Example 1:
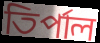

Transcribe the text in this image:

তিৰ্পাল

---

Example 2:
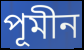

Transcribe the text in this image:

পূমীন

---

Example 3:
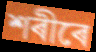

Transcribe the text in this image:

শৰীৰে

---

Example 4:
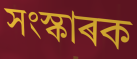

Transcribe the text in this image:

সংস্কাৰক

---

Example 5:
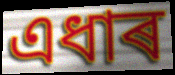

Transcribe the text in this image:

এধাৰ